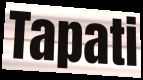
Tapati